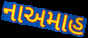
નાઅમાહ